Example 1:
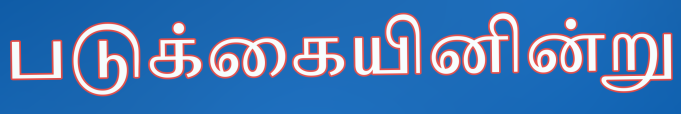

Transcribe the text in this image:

படுக்கையினின்று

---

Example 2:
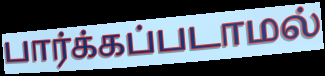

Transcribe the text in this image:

பார்க்கப்படாமல்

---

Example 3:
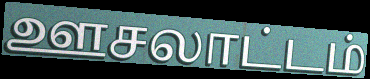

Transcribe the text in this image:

ஊசலாட்டம்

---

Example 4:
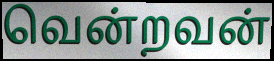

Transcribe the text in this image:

வென்றவன்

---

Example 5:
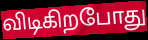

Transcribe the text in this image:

விடிகிறபோது